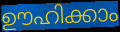
ഊഹിക്കാം